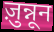
ज़ुन्नून